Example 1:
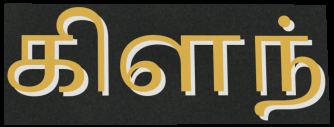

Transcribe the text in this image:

கிளந்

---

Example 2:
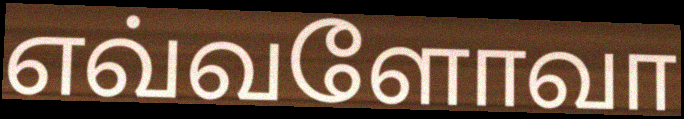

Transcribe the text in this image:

எவ்வளோவா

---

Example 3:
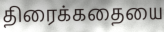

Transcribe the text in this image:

திரைக்கதையை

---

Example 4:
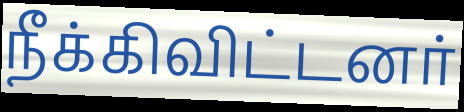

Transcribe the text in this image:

நீக்கிவிட்டனர்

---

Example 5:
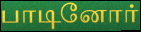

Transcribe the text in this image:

பாடினோர்